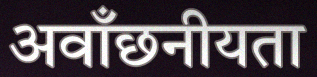
अवाँछनीयता